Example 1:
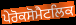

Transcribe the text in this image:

ਪੇਰੋਕਸੋਮੈਟਲਿਕ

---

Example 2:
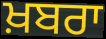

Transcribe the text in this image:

ਖ਼ਬਰਾ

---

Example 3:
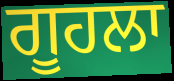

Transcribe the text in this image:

ਗੂਹਲਾ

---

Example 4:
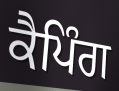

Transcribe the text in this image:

ਕੈਪਿੰਗ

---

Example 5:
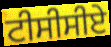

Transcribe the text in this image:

ਟੀਸੀਸੀਏ